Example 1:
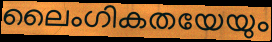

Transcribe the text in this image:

ലൈംഗികതയേയും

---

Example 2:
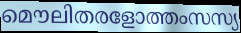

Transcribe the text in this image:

മൌലിതരളോത്തംസസ്യ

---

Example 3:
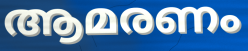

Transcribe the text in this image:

ആമരണം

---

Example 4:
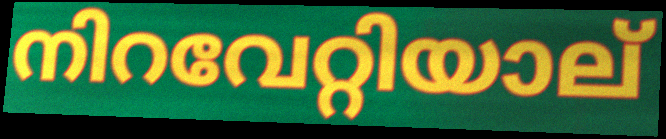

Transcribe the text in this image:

നിറവേറ്റിയാല്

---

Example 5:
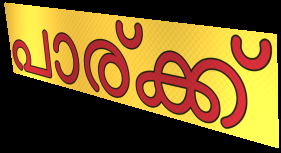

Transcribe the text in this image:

പാര്ക്ക്